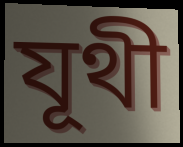
যূথী